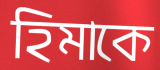
হিমাকে